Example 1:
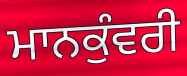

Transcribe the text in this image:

ਮਾਨਕੁੰਵਰੀ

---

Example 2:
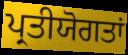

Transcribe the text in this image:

ਪ੍ਰਤੀਯੋਗਤਾਂ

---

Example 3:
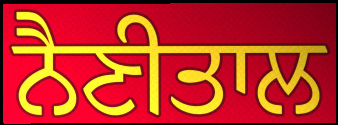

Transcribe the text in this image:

ਨੈਣੀਤਾਲ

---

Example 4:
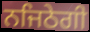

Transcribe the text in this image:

ਨਜਿਠੇਗੀ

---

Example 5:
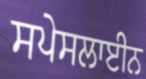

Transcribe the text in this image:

ਸਪੇਸਲਾਈਨ